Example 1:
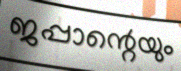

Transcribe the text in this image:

ജപ്പാന്റെയും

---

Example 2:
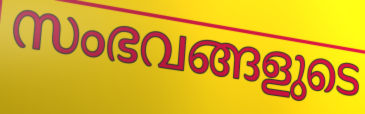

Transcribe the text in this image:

സംഭവങ്ങളുടെ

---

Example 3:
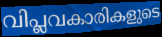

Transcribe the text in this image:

വിപ്ലവകാരികളുടെ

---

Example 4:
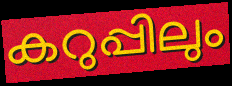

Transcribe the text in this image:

കറുപ്പിലും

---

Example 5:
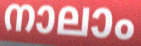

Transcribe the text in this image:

നാലാം